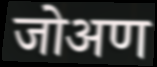
जोअण